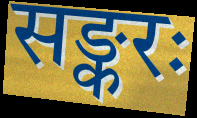
सङ्करः